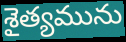
శైత్యమును